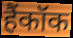
हैंकॉक